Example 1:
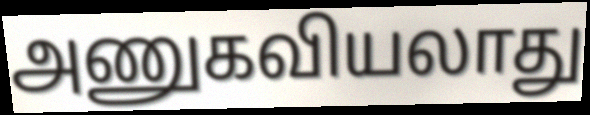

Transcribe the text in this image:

அணுகவியலாது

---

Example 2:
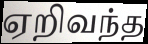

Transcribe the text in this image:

ஏறிவந்த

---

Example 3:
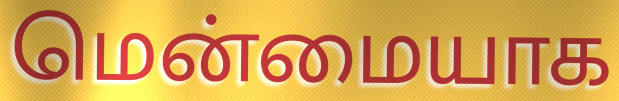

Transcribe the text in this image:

மென்மையாக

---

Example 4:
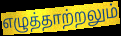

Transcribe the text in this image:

எழுத்தாற்றலும்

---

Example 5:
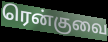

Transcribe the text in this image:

ரென்குவை